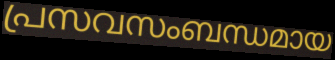
പ്രസവസംബന്ധമായ